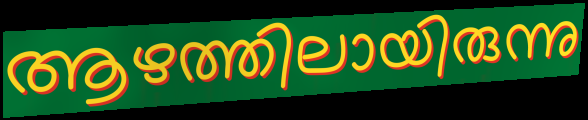
ആഴത്തിലായിരുന്നു